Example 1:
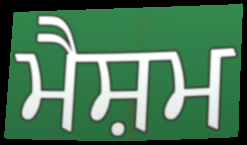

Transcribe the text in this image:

ਮੈਸ਼ਮ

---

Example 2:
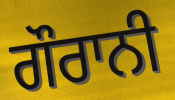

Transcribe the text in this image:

ਗੌਰਾਨੀ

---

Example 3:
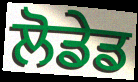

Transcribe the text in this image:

ਲੋਡੇਡ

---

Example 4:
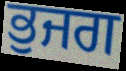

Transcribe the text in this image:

ਭੁਜਗ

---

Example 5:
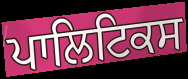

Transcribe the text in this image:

ਪਾਲਿਟਿਕਸ